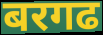
बरगढ